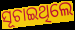
ସୂଚାଇଥିଲେ